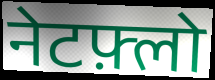
नेटफ़्लो